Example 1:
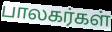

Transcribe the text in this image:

பாலகர்கள்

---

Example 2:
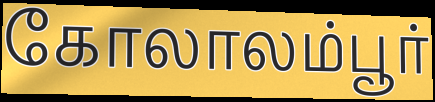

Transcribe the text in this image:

கோலாலம்பூர்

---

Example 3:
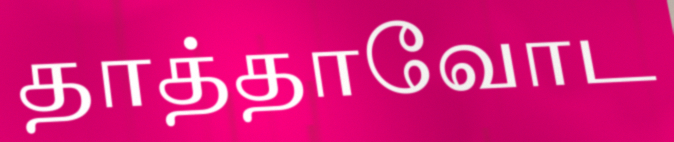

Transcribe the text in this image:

தாத்தாவோட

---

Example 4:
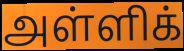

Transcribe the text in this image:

அள்ளிக்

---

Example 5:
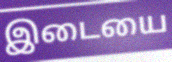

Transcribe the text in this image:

இடையை